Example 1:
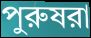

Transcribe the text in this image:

পুরুষরা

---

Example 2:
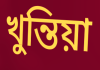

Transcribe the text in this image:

খুন্তিয়া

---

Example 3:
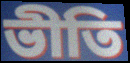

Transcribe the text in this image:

ভীতি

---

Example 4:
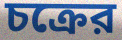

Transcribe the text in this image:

চক্রের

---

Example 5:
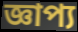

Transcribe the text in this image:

জ্ঞাপ্য